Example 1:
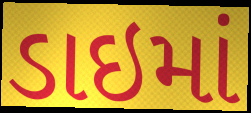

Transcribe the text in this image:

ડાઇમાં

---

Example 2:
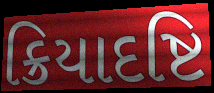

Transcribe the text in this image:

ક્રિયાદષ્ટિ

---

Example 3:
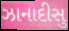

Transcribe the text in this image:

ઝાનાદીસુ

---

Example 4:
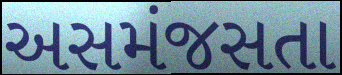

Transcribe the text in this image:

અસમંજસતા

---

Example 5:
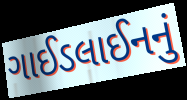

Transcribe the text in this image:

ગાઈડલાઈનનું